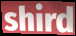
shird